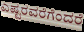
ಎಷ್ಟರವರೆಗೆಂದರೆ